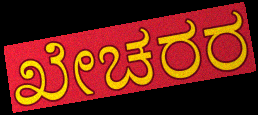
ಖೇಚರರ